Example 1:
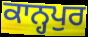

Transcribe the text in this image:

ਕਾਨ੍ਹਪੁਰ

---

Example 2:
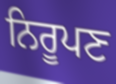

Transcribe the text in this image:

ਨਿਰੂਪਣ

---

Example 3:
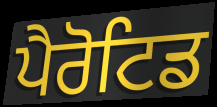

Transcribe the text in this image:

ਪੈਰੋਟਿਡ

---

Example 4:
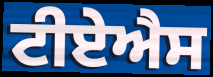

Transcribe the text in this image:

ਟੀਏਐਸ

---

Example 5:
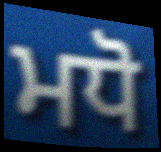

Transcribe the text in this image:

ਮਧੋ